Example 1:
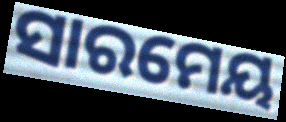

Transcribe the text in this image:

ସାରମେୟ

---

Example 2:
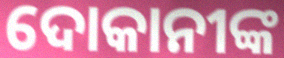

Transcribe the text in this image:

ଦୋକାନୀଙ୍କ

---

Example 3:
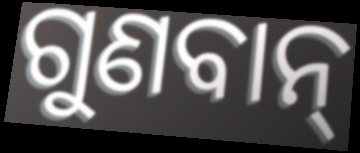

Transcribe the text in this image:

ଗୁଣବାନ୍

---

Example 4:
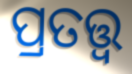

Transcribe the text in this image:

ପ୍ରତତ୍ତ୍ୱ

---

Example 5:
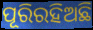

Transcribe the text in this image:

ପୂରିରହିଅଛି